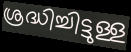
ശ്രദ്ധിച്ചിട്ടുള്ള